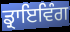
ਡ੍ਰਾਇਵਿੰਗ